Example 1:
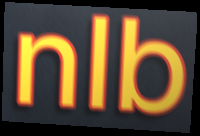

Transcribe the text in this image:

nlb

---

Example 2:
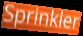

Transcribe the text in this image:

Sprinkler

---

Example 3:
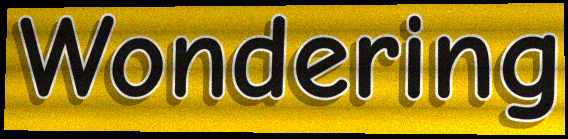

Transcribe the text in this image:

Wondering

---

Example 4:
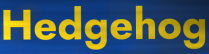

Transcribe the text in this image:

Hedgehog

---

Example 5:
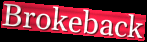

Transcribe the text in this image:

Brokeback